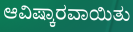
ಆವಿಷ್ಕಾರವಾಯಿತು